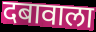
दबावाला